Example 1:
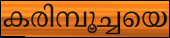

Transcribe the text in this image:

കരിമ്പൂച്ചയെ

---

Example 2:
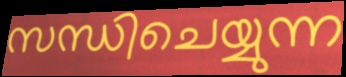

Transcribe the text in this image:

സന്ധിചെയ്യുന്ന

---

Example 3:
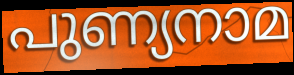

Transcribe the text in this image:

പുണ്യനാമ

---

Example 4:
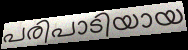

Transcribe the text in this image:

പരിപാടിയായ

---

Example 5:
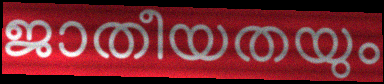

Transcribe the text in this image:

ജാതീയതയും